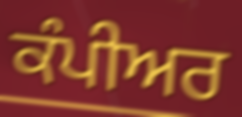
ਕੰਪੀਅਰ